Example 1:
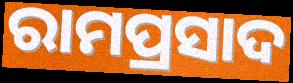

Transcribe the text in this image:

ରାମପ୍ରସାଦ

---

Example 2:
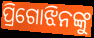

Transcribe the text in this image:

ପ୍ରିଗୋଝିନଙ୍କୁ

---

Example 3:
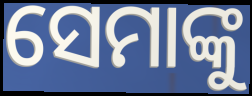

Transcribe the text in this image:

ସେମାଙ୍କୁ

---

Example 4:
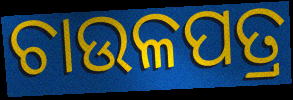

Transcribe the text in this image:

ଚାଉଳପତ୍ର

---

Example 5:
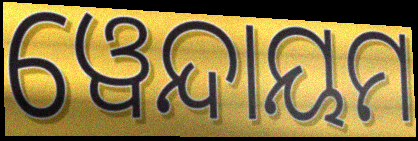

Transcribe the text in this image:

ୱେନ୍ଦାୟମ